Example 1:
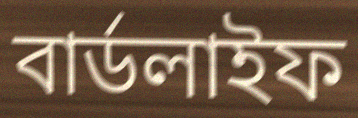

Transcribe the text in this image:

বার্ডলাইফ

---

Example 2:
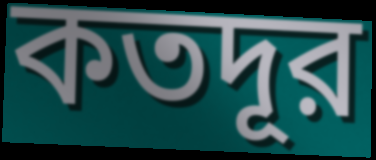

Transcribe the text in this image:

কতদূর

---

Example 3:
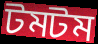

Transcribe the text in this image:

টমটম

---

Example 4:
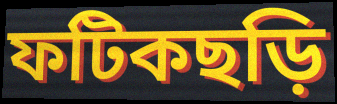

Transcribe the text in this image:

ফটিকছড়ি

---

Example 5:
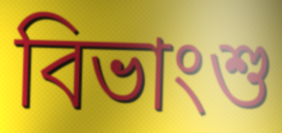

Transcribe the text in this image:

বিভাংশু